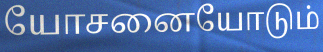
யோசனையோடும்